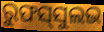
ରୁଫସ୍‌ସୁଲଭ